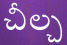
చీల్చ